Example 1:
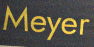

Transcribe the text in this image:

Meyer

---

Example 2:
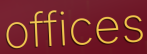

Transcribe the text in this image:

offices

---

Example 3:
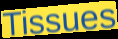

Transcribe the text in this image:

Tissues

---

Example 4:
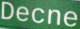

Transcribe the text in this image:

Decne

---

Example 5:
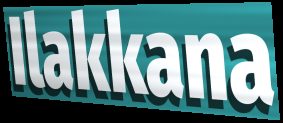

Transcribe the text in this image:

Ilakkana